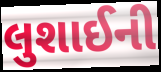
લુશાઈની